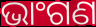
ଭାଂଗଣ